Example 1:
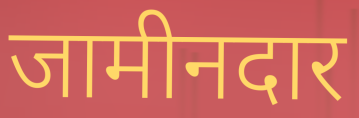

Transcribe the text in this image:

जामीनदार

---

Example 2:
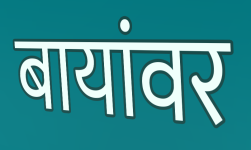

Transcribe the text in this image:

बायांवर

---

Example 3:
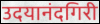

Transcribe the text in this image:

उदयानंदगिरी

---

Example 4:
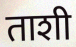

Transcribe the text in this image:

ताशी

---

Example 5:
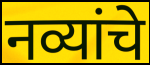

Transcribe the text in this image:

नव्यांचे